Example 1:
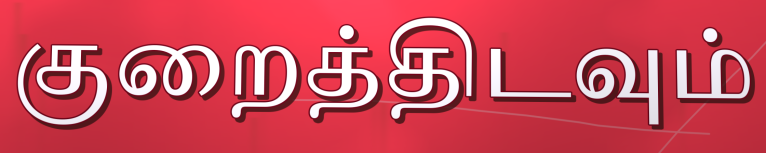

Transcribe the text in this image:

குறைத்திடவும்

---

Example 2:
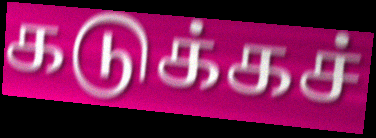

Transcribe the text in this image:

கடுக்கச்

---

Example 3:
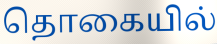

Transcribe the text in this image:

தொகையில்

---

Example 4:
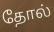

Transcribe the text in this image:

தோல்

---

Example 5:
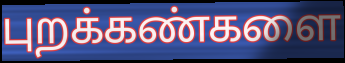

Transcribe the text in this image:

புறக்கண்களை